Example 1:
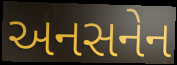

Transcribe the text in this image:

અનસનેન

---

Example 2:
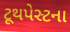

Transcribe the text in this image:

ટૂથપેસ્ટના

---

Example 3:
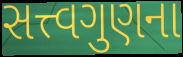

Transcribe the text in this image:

સત્ત્વગુણના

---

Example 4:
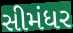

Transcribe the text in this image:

સીમંધર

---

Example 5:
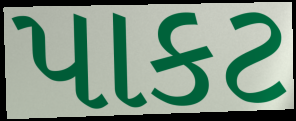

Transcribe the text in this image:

પાકટ